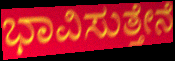
ಭಾವಿಸುತ್ತೇನೆ